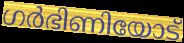
ഗർഭിണിയോട്